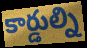
కార్డుల్ని